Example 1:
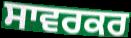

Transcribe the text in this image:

ਸਾਵਰਕਰ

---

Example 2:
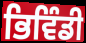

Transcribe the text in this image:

ਭਿਵਿੰਡੀ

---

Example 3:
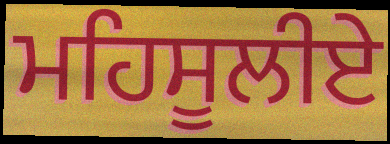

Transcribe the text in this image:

ਮਹਿਸੂਲੀਏ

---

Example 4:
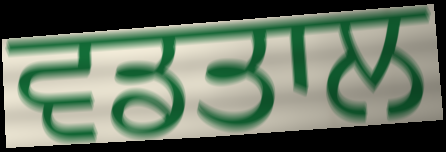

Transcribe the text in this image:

ਵਡਤਾਲ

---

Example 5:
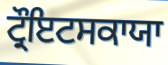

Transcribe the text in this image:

ਟ੍ਰੌਇਟਸਕਾਯਾ